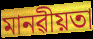
মানৱীয়তা